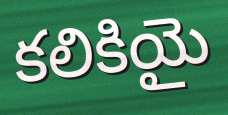
కలికియై